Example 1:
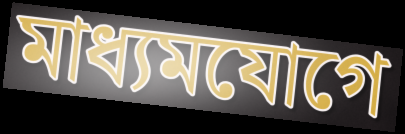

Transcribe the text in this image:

মাধ্যমযোগে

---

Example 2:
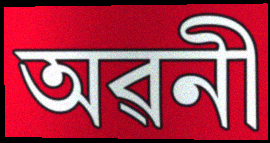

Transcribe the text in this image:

অৱনী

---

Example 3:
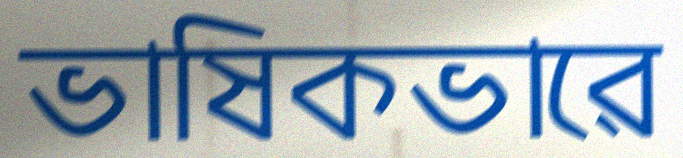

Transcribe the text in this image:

ভাষিকভাৱে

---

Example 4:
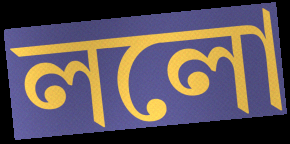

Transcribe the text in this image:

ললো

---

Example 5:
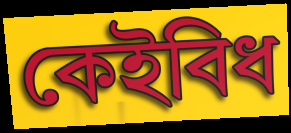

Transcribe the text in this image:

কেইবিধ